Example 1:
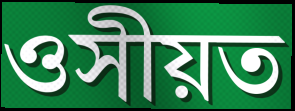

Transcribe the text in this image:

ওসীয়ত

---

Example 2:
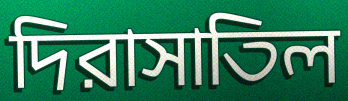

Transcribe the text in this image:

দিরাসাতিল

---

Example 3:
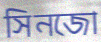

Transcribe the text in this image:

সিনজো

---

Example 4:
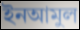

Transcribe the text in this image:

ইনআমুল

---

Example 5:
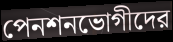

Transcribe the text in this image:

পেনশনভোগীদের